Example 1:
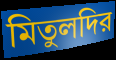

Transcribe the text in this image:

মিতুলদির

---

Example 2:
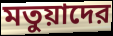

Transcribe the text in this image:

মতুয়াদের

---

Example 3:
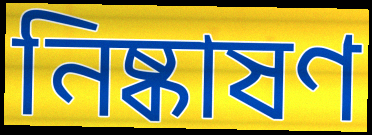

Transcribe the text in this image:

নিষ্কাষণ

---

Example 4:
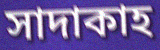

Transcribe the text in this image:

সাদাকাহ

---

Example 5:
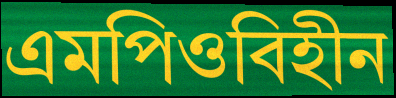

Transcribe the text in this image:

এমপিওবিহীন